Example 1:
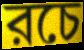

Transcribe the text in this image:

রচে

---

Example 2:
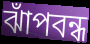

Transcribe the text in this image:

ঝাঁপবন্ধ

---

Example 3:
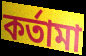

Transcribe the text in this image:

কর্তামা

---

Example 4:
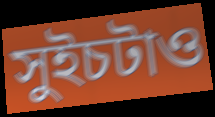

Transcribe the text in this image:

সুইচটাও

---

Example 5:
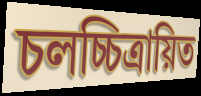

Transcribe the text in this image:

চলচ্চিত্রায়িত